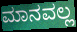
ಮಾನವಲ್ಲ